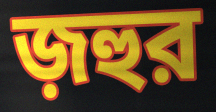
জ়হুর